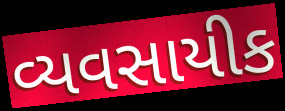
વ્યવસાયીક